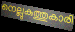
നെല്ലുകുത്തുകാരി